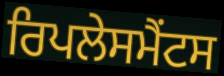
ਰਿਪਲੇਸਮੈਂਟਸ